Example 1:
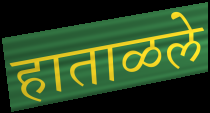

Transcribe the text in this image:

हाताळले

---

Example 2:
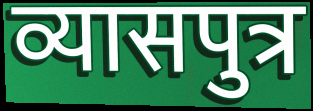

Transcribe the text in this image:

व्यासपुत्र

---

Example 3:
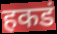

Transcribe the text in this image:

हकडं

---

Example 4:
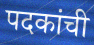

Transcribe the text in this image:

पदकांची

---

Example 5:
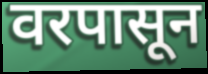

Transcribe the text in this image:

वरपासून